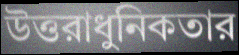
উত্তরাধুনিকতার